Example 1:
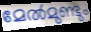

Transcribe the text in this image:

മേൽമുണ്ടും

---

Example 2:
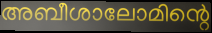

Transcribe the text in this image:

അബീശാലോമിന്റെ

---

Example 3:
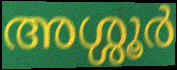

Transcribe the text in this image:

അശ്ശൂർ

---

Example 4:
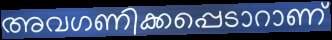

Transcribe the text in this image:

അവഗണിക്കപ്പെടാറാണ്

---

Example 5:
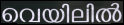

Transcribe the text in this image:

വെയിലിൽ